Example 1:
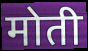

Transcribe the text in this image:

मोती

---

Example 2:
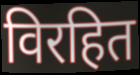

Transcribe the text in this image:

विरहित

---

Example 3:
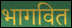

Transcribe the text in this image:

भागवित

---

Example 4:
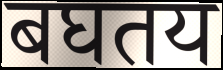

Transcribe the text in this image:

बघतय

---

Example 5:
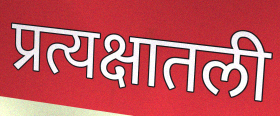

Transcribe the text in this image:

प्रत्यक्षातली